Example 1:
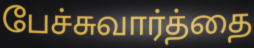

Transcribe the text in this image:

பேச்சுவார்த்தை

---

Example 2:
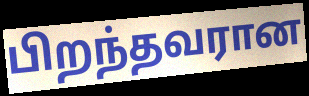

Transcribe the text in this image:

பிறந்தவரான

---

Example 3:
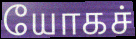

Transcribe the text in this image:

யோகச்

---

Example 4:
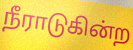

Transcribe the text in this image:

நீராடுகின்ற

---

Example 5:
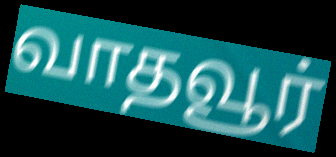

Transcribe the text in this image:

வாதவூர்